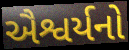
ઐશ્વર્યનો